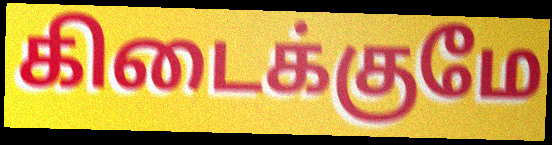
கிடைக்குமே